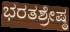
ಭರತಶ್ರೇಷ್ಠ